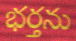
భర్తను